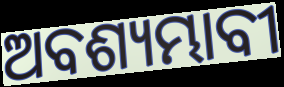
ଅବଶ୍ୟମ୍ଭାବୀ